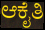
ಆಕೈತಿ